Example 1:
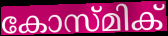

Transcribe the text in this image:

കോസ്മിക്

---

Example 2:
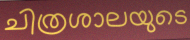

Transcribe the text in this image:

ചിത്രശാലയുടെ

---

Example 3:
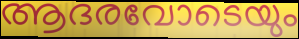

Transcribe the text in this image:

ആദരവോടെയും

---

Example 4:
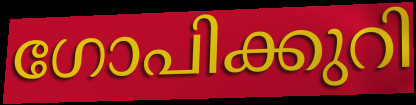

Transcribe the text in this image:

ഗോപിക്കുറി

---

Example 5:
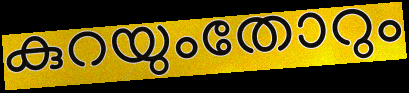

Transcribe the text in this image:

കുറയുംതോറും